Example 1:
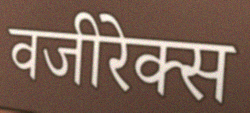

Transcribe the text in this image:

वजीरेक्स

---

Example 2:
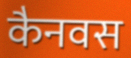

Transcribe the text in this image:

कैनवस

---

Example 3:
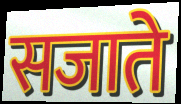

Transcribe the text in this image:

सजाते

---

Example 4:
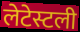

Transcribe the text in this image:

लेटेस्टली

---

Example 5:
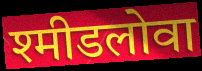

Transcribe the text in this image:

श्मीडलोवा